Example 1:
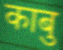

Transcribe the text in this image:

काबु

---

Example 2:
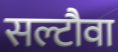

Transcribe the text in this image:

सल्टौवा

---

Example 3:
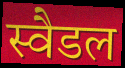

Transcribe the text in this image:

स्वैडल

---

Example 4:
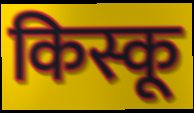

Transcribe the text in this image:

किस्कू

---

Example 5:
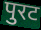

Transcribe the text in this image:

पुरट